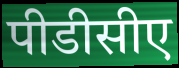
पीडीसीए